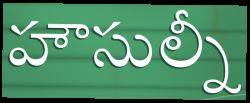
హౌసుల్నీ